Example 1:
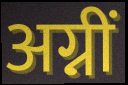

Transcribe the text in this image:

अग्नीं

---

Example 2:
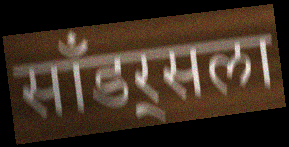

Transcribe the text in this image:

साँडर्सला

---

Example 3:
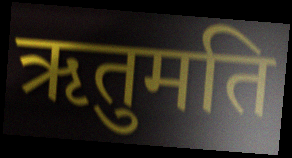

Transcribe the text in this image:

ऋतुमति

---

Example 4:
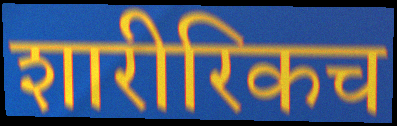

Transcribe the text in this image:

शारीरिकच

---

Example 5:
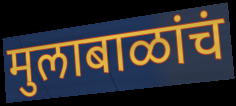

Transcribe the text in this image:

मुलाबाळांचं